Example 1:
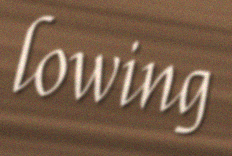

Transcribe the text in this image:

lowing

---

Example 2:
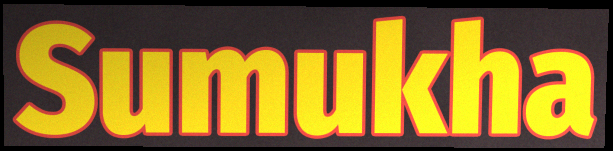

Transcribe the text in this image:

Sumukha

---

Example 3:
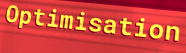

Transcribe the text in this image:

Optimisation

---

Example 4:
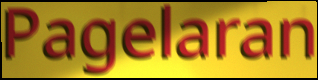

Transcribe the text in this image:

Pagelaran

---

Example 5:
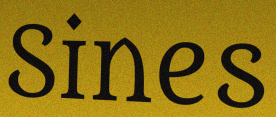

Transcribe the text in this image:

Sines